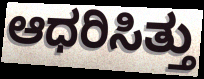
ಆಧರಿಸಿತ್ತು